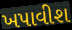
ખપાવીશ